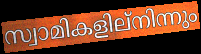
സ്വാമികളില്നിന്നും